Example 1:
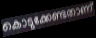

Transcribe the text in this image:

കൊടുക്കേണ്ടതാണ്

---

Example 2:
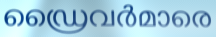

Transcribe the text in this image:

ഡ്രൈവർമാരെ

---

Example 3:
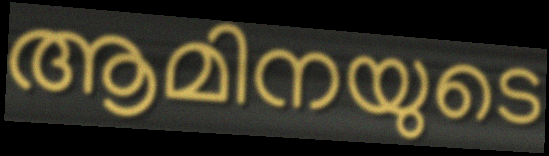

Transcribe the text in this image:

ആമിനയുടെ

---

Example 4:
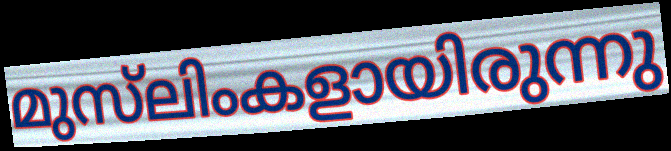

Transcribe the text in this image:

മുസ്‌ലിംകളായിരുന്നു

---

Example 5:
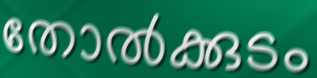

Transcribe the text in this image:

തോൽക്കുടം